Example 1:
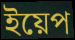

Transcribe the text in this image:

ইয়েপ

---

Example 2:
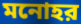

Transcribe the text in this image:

মনোহর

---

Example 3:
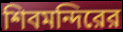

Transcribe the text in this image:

শিবমন্দিরের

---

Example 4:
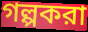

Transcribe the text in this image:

গল্পকরা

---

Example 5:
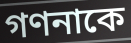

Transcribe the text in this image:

গণনাকে